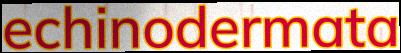
echinodermata